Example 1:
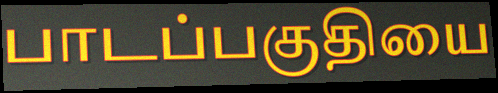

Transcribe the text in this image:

பாடப்பகுதியை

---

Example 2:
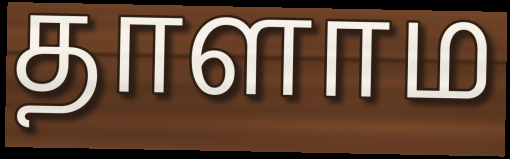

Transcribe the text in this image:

தாளாம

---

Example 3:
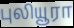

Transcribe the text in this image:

புலியூரா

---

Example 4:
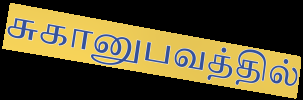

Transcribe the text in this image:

சுகானுபவத்தில்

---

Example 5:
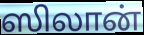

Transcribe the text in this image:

ஸிலான்